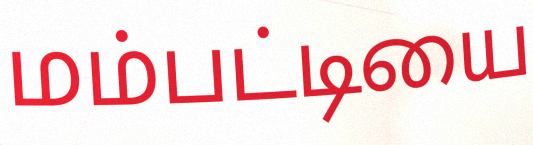
மம்பட்டியை